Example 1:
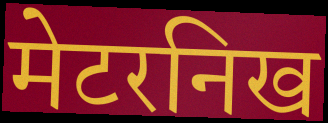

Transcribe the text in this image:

मेटरनिख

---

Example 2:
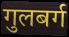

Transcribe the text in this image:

गुलबर्ग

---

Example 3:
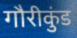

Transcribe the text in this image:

गौरीकुंड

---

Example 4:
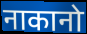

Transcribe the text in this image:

नाकानो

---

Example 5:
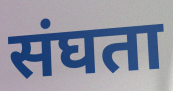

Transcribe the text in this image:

संघता